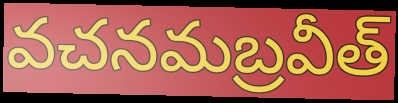
వచనమబ్రవీత్